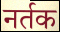
नर्तक